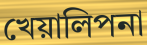
খেয়ালিপনা